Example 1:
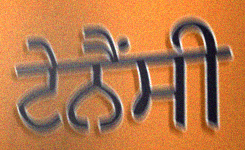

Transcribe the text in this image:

ਟੇਨੈਂਸੀ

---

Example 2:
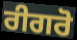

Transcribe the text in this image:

ਰੀਗਰੋ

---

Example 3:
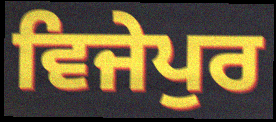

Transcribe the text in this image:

ਵਿਜੇਪੁਰ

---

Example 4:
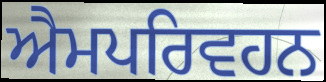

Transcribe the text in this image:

ਐਮਪਰਿਵਹਨ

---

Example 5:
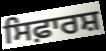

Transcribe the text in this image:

ਸਿਫ਼ਾਰਸ਼